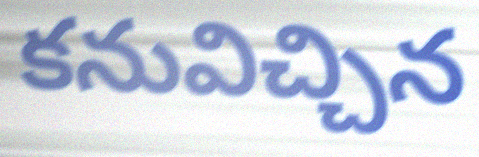
కనువిచ్చిన